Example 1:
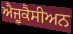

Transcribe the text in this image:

ਐਜੂਕੈਸੀਅਨ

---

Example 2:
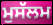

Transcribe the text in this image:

ਮੁਸੱਲਮ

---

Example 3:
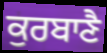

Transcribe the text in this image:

ਕੁਰਬਾਣੈ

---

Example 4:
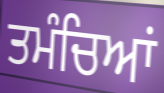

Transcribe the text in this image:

ਤਮੰਚਿਆਂ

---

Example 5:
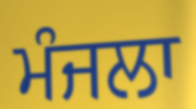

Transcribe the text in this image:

ਮੰਜਲਾ